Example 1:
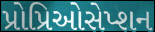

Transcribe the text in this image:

પ્રોપ્રિઓસેપ્શન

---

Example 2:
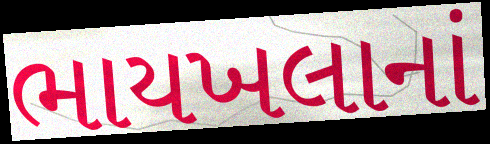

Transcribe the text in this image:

ભાયખલાનાં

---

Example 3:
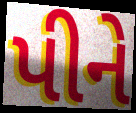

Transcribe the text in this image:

પીને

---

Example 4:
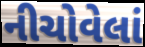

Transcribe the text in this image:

નીચોવેલાં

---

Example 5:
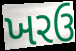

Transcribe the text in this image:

ખરઉ